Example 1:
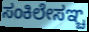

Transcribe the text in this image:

ಸಂಕಿಲೇಸಞ್ಚ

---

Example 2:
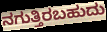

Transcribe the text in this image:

ನಗುತ್ತಿರಬಹುದು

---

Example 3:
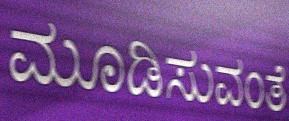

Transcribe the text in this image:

ಮೂಡಿಸುವಂತೆ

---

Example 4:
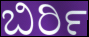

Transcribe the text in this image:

ಬಿರ್ರಿ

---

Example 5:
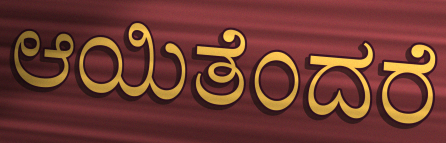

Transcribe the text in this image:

ಆಯಿತೆಂದರೆ